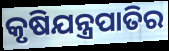
କୃଷିଯନ୍ତ୍ରପାତିର